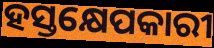
ହସ୍ତକ୍ଷେପକାରୀ